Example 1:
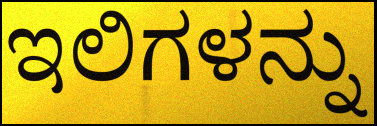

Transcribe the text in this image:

ಇಲಿಗಳನ್ನು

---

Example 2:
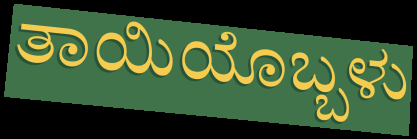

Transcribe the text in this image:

ತಾಯಿಯೊಬ್ಬಳು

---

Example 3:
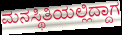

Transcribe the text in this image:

ಮನಸ್ಥಿತಿಯಲ್ಲಿದ್ದಾಗ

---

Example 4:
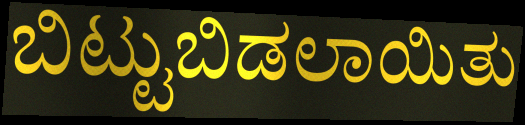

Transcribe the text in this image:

ಬಿಟ್ಟುಬಿಡಲಾಯಿತು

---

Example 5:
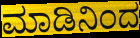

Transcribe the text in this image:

ಮಾಡಿನಿಂದ